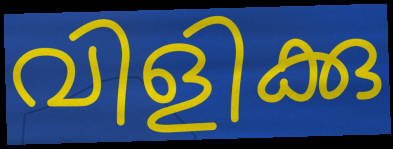
വിളിക്കു